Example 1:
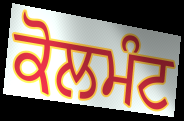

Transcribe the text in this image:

ਕੋਲਮੰਟ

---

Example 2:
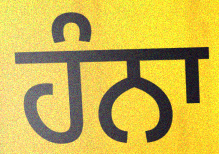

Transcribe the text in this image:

ਹੰਨਾ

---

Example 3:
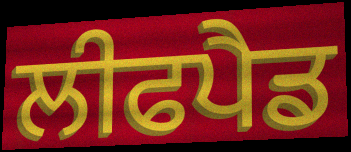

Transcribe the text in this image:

ਲੀਫਪੈਡ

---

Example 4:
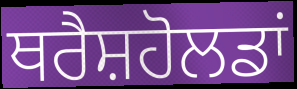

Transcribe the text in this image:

ਥਰੈਸ਼ਹੋਲਡਾਂ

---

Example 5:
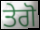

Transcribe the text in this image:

ਤੇਗੋ